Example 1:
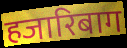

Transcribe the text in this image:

हजारिबाग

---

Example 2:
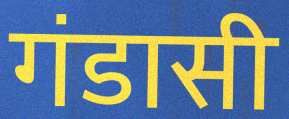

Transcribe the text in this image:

गंडासी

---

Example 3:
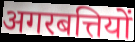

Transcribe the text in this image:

अगरबत्तियों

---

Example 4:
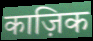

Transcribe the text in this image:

काज़िक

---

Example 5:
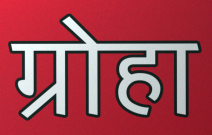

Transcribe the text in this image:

ग्रोहा